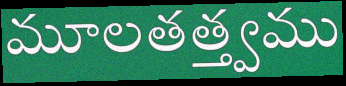
మూలతత్త్వము